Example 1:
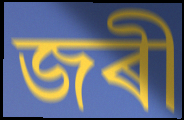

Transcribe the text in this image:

জৰী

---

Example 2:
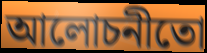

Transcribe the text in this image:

আলোচনীতো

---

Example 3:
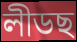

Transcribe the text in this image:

লীডছ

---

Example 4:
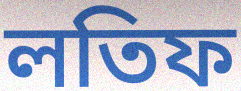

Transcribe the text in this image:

লতিফ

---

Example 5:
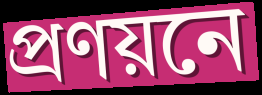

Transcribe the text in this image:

প্ৰণয়নে